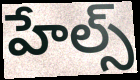
హేల్స్